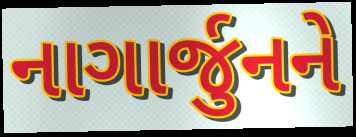
નાગાર્જુનને